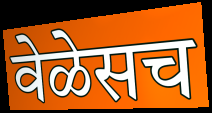
वेळेसच